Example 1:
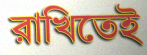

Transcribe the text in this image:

রাখিতেই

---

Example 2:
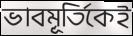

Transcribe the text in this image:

ভাবমূর্তিকেই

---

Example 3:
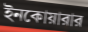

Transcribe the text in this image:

ইনকোয়ারার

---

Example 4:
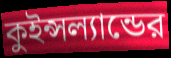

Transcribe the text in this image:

কুইন্সল্যান্ডের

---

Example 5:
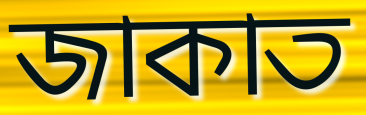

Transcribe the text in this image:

জাকাত